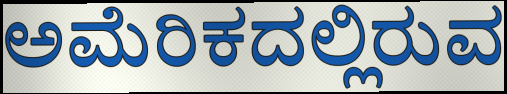
ಅಮೆರಿಕದಲ್ಲಿರುವ